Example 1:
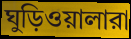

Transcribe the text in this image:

ঘুড়িওয়ালারা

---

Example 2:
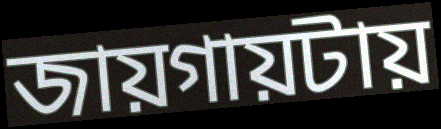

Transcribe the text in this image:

জায়গায়টায়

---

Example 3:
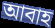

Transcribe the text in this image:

আবাহ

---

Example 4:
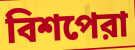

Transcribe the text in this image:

বিশপেরা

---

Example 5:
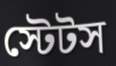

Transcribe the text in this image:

স্টেটস